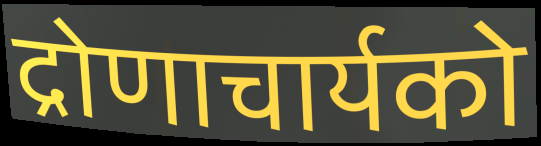
द्रोणाचार्यको